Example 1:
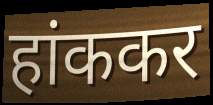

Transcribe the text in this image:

हांककर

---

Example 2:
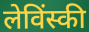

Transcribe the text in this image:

लेविंस्की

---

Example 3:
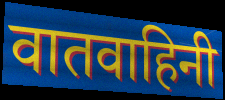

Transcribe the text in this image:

वातवाहिनी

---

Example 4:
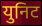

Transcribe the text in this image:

युनिट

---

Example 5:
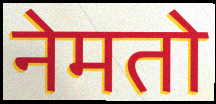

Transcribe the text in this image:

नेमतो